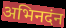
अभिनदंन